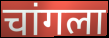
चांगला